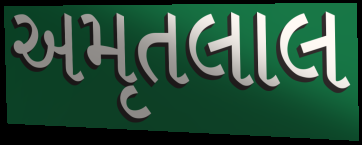
અમૃતલાલ